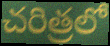
చరిత్రలో